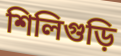
শিলিগুড়ি